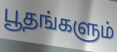
பூதங்களும்